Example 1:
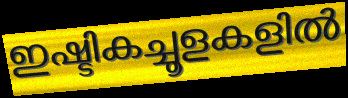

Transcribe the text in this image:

ഇഷ്ടികച്ചൂളകളിൽ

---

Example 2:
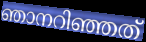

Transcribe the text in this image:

ഞാനറിഞ്ഞത്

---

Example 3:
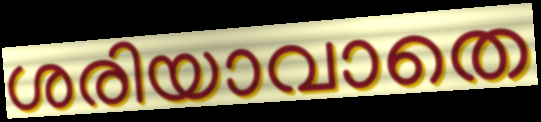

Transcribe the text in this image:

ശരിയാവാതെ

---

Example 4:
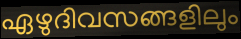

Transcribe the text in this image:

ഏഴുദിവസങ്ങളിലും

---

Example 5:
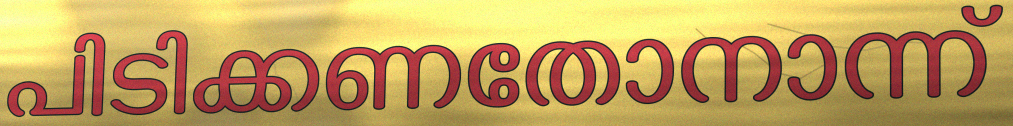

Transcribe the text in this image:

പിടിക്കണതോനാന്ന്